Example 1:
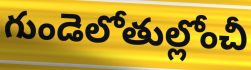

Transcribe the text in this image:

గుండెలోతుల్లోంచీ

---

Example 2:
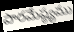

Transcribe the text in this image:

పారమేష్ఠ్యము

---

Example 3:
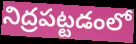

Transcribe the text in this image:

నిద్రపట్టడంలో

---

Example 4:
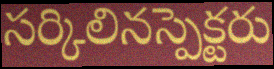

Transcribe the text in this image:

సర్కిలినస్పెక్టరు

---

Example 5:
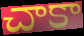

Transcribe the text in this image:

చాకా